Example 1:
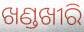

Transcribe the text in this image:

ଖଣ୍ଡଖୀରି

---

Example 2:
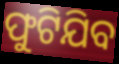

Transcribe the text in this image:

ଫୁଟିଯିବ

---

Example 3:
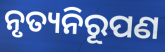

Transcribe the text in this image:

ନୃତ୍ୟନିରୂପଣ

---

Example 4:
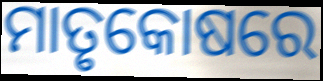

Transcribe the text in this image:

ମାତୃକୋଷରେ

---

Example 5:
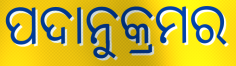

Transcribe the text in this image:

ପଦାନୁକ୍ରମର